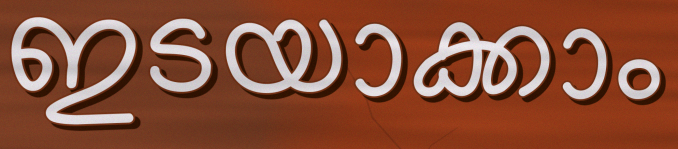
ഇടയാക്കാം